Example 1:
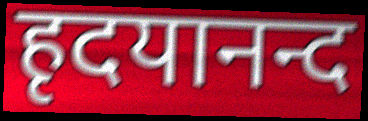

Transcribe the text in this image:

हृदयानन्द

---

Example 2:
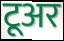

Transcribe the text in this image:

टूअर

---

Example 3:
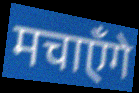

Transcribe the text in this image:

मचाएँगे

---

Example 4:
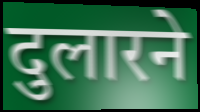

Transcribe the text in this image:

दुलारने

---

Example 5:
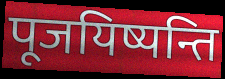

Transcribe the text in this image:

पूजयिष्यन्ति